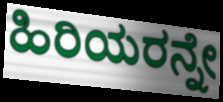
ಹಿರಿಯರನ್ನೇ